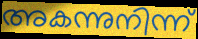
അകന്നുനിന്ന്